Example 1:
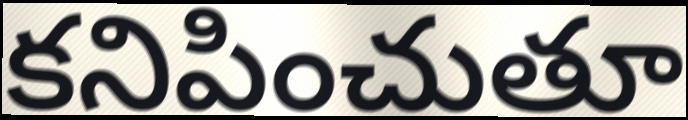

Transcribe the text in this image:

కనిపించుతూ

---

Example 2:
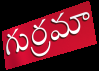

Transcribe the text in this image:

గుర్రమా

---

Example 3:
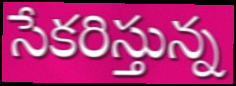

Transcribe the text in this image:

సేకరిస్తున్న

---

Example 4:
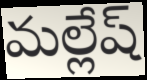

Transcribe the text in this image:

మల్లేష్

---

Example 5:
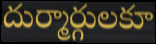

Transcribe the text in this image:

దుర్మార్గులకూ